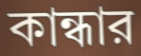
কান্ধার